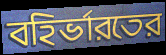
বহির্ভারতের